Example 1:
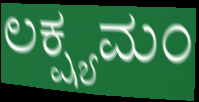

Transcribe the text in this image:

ಲಕ್ಷ್ಯಮಂ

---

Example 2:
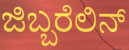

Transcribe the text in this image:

ಜಿಬ್ಬರೆಲಿನ್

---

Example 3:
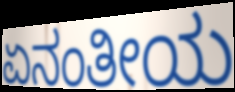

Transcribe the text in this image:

ಏನಂತೀಯ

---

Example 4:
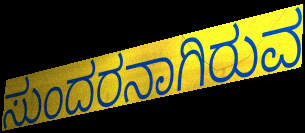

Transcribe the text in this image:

ಸುಂದರನಾಗಿರುವ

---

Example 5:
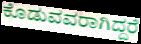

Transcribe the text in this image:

ಕೊಡುವವರಾಗಿದ್ದರೆ